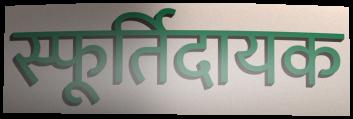
स्फूर्तिदायक